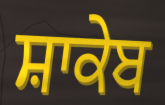
ਸ਼ਾਕੇਬ